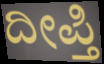
ದೀಪ್ತಿ